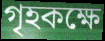
গৃহকক্ষে